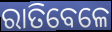
ରାତିବେଳେ